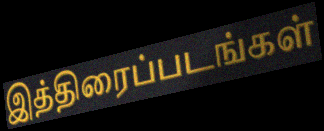
இத்திரைப்படங்கள்